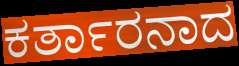
ಕರ್ತಾರನಾದ